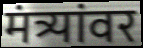
मंत्र्यांवर